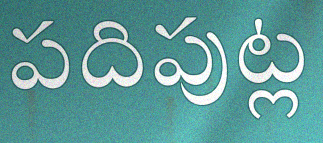
పదిపుట్ల